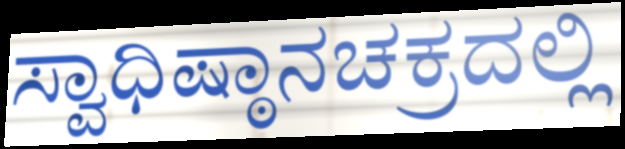
ಸ್ವಾಧಿಷ್ಠಾನಚಕ್ರದಲ್ಲಿ